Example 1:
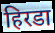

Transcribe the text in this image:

हिरडा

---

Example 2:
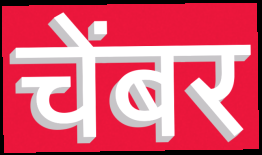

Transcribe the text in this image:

चेंबर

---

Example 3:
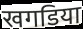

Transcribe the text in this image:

खगडिया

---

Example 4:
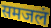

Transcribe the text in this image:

समजलं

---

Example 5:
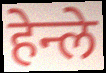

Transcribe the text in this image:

हेन्ले